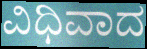
ವಿಧಿವಾದ